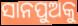
ସାନପୁଅକୁ